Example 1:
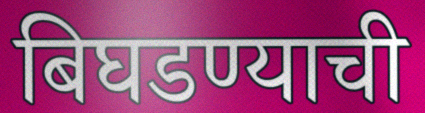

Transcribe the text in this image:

बिघडण्याची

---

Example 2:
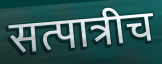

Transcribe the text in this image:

सत्पात्रीच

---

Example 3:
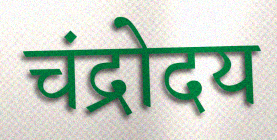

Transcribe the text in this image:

चंद्रोदय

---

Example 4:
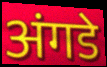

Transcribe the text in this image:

अंगडे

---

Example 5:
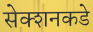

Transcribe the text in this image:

सेक्शनकडे